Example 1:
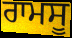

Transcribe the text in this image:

ਰਾਮਸੂ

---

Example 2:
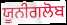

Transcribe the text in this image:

ਯੂਨੀਗਲੋਬ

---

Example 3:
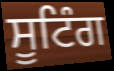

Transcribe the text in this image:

ਸੂਟਿੰਗ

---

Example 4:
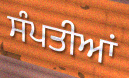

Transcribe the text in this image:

ਸੰਪਤੀਆਂ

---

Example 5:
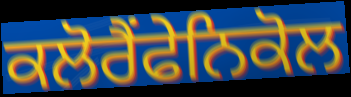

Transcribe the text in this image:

ਕਲੋਰੈਂਫੇਨਿਕੋਲ